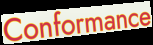
Conformance